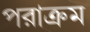
পরাক্রম